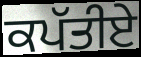
ਕਪੱਤੀਏ